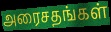
அரைசதங்கள்